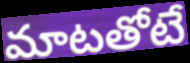
మాటతోటే